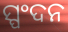
ସ୍ପଂଦନ